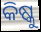
କିଷ୍କୁ